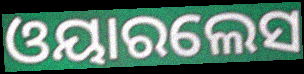
ଓୟାରଲେସ